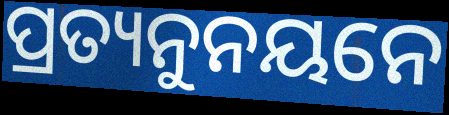
ପ୍ରତ୍ୟନୁନୟନେ